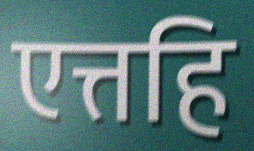
एत्तहि